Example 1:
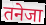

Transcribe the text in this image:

तनेजा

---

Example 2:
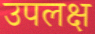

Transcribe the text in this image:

उपलक्ष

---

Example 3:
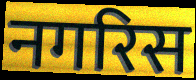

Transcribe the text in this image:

नगरिस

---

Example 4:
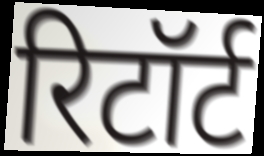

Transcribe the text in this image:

रिटॉर्ट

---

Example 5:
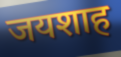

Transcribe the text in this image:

जयशाह